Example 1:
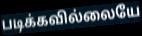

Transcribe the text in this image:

படிக்கவில்லையே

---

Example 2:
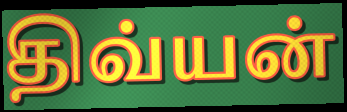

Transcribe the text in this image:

திவ்யன்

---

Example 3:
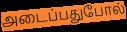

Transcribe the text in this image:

அடைப்பதுபோல்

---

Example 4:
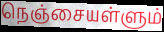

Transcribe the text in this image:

நெஞ்சையள்ளும்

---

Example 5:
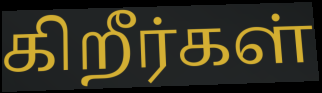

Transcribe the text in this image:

கிறீர்கள்